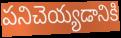
పనిచెయ్యడానికి